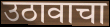
उठावाचा